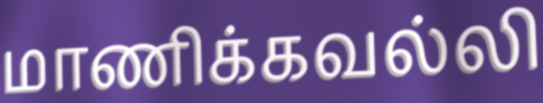
மாணிக்கவல்லி